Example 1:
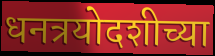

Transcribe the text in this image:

धनत्रयोदशीच्या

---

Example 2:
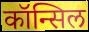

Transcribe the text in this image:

कॉन्सिल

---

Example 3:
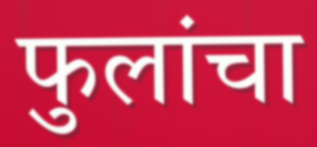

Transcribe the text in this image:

फुलांचा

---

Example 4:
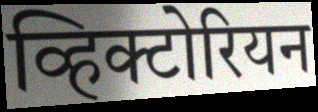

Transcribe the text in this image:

व्हिक्टोरियन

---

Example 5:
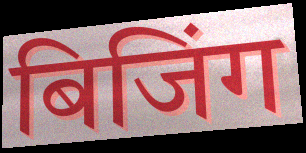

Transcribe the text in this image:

बिजिंग